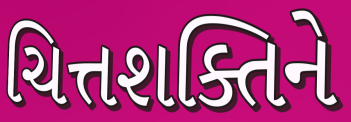
ચિત્તશક્તિને